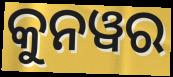
କୁନୱର